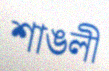
শাঙলী